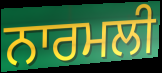
ਨਾਰਮਲੀ